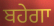
ਬਹੇਗਾ